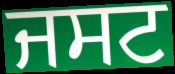
ਜਸਟ